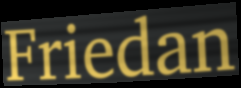
Friedan